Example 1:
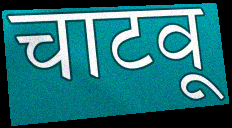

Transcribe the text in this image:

चाटवू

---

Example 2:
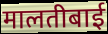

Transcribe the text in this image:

मालतीबाई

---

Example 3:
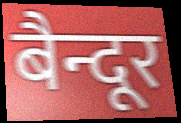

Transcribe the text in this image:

बैन्दूर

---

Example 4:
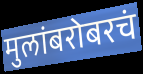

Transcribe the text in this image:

मुलांबरोबरचं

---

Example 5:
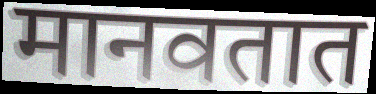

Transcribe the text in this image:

मानवतात